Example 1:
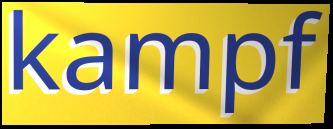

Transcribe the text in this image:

kampf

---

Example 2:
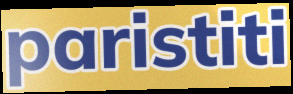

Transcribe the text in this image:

paristiti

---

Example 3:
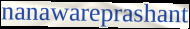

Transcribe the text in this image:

nanawareprashant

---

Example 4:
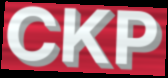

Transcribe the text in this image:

CKP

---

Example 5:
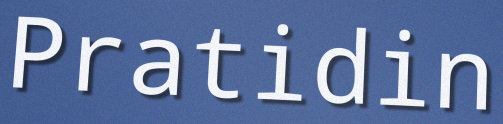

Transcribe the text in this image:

Pratidin